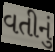
વતીનું